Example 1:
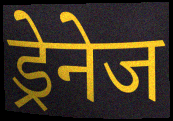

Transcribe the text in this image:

ड्रेनेज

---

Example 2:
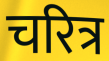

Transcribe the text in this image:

चरित्र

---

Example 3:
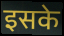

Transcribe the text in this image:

इसके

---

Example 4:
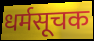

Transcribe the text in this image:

धर्मसूचक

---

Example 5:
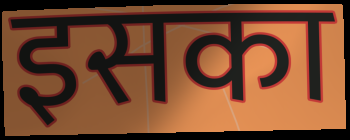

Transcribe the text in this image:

इसका